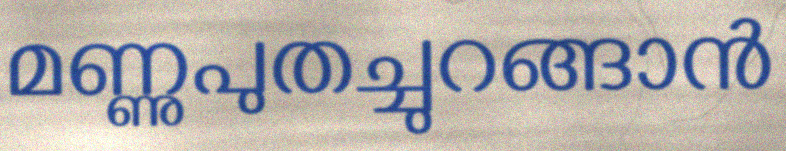
മണ്ണുപുതച്ചുറങ്ങാൻ